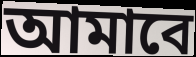
আমাবে